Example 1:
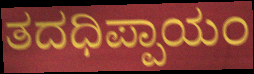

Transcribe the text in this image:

ತದಧಿಪ್ಪಾಯಂ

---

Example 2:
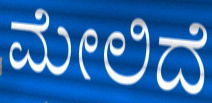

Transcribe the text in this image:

ಮೇಲಿದೆ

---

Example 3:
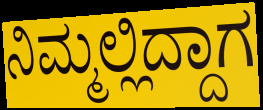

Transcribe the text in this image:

ನಿಮ್ಮಲ್ಲಿದ್ದಾಗ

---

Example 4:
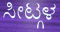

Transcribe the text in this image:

ಸೀಟ್ಗಳ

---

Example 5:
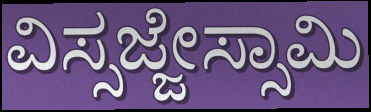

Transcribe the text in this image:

ವಿಸ್ಸಜ್ಜೇಸ್ಸಾಮಿ